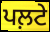
ਪਲ਼ਟੇ